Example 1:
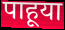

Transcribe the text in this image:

पाहूया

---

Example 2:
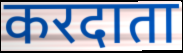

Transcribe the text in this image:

करदाता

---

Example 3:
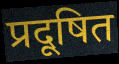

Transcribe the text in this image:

प्रदूषित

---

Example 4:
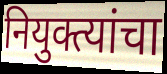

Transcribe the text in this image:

नियुक्त्यांचा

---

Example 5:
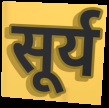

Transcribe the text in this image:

सूर्य